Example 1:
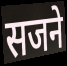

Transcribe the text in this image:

सजने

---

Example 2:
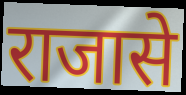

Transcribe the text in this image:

राजासे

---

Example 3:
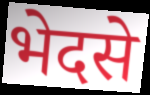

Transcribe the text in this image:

भेदसे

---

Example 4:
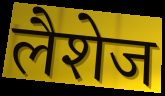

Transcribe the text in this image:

लैशेज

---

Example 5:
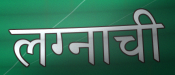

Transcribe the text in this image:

लग्नाची